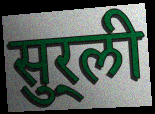
सुर्ली